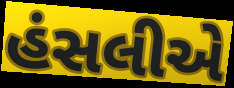
હંસલીએ